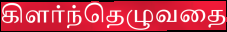
கிளர்ந்தெழுவதை